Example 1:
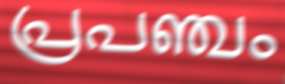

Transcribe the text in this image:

പ്രപഞ്ചം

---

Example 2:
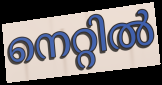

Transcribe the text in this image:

നെറ്റിൽ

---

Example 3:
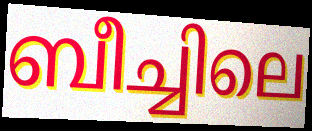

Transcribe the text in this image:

ബീച്ചിലെ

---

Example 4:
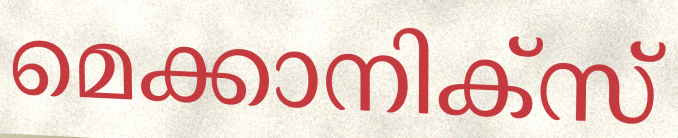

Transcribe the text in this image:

മെക്കാനിക്സ്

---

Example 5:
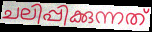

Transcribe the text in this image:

ചലിപ്പിക്കുന്നത്